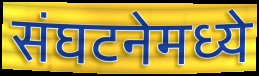
संघटनेमध्ये